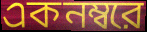
একনম্বরে